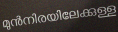
മുൻനിരയിലേക്കുള്ള